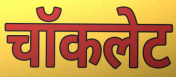
चॉकलेट